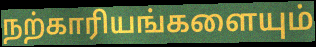
நற்காரியங்களையும்